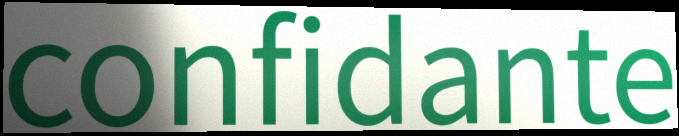
confidante